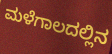
ಮಳೆಗಾಲದಲ್ಲಿನ